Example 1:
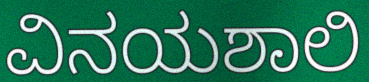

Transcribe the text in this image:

ವಿನಯಶಾಲಿ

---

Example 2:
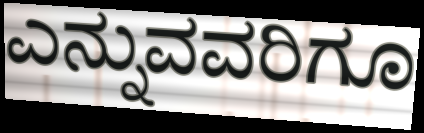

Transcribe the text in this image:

ಎನ್ನುವವರಿಗೂ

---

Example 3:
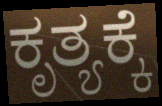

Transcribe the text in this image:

ಕೃತ್ಯಕ್ಕೆ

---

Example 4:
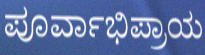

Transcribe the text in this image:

ಪೂರ್ವಾಭಿಪ್ರಾಯ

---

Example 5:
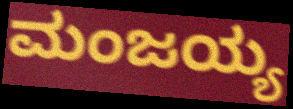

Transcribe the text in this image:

ಮಂಜಯ್ಯ